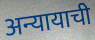
अन्यायाची